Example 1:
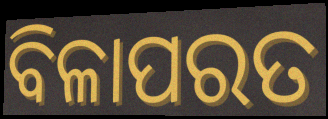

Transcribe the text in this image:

ବିଳାପରତ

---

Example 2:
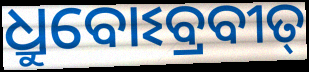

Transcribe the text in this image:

ଧ୍ରୁବୋଽବ୍ରବୀତ୍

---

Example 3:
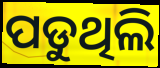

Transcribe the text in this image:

ପଡୁଥିଲି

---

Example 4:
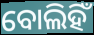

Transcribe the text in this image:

ବୋଲିହିଁ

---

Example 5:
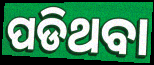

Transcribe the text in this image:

ପଡିଥବା